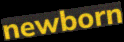
newborn